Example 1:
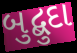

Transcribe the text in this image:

બુદ્બુદા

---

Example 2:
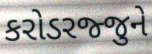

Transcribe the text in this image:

કરોડરજ્જુને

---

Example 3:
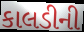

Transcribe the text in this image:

કાલડીની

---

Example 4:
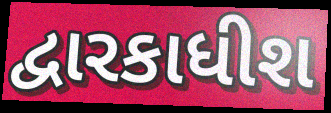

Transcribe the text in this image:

દ્વારકાધીશ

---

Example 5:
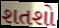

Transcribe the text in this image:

શતશો